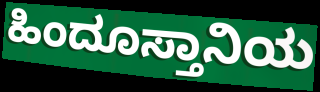
ಹಿಂದೂಸ್ತಾನಿಯ